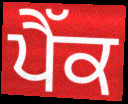
ਪੈੱਕ